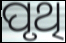
ପୃଥି